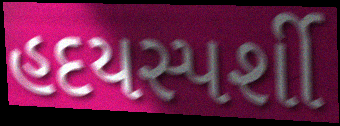
હદયસ્પર્શી